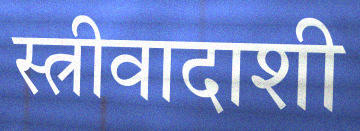
स्त्रीवादाशी